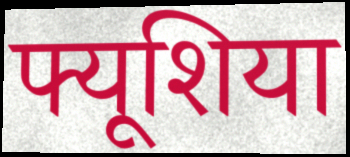
फ्यूशिया